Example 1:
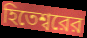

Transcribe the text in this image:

হিতেশ্বরের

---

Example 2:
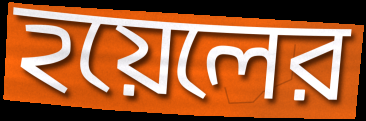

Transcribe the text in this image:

হয়েলের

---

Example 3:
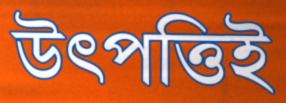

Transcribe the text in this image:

উৎপত্তিই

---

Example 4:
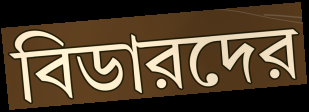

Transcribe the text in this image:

বিডারদের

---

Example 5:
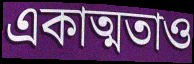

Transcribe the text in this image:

একাত্মতাও